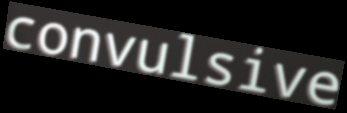
convulsive